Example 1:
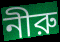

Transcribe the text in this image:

নীরু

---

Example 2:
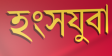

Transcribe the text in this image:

হংসযুবা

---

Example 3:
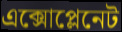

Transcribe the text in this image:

এক্সোপ্লেনেট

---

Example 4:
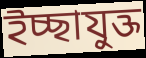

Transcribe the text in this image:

ইচ্ছাযুক্ত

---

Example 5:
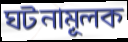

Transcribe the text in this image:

ঘটনামূলক